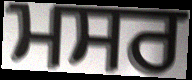
ਮਸਰ